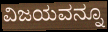
ವಿಜಯವನ್ನೂ